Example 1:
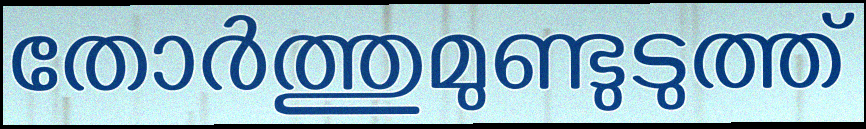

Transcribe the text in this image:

തോർത്തുമുണ്ടുടുത്ത്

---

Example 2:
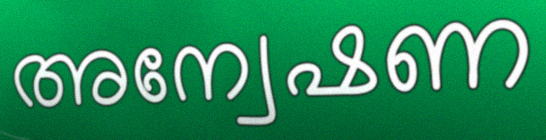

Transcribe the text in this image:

അന്വേഷണ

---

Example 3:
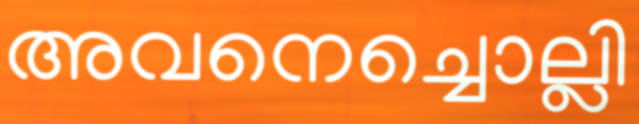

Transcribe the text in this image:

അവനെച്ചൊല്ലി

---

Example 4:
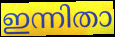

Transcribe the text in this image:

ഇന്നിതാ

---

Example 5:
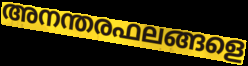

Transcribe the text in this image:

അനന്തരഫലങ്ങളെ